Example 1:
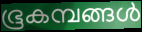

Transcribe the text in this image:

ഭൂകമ്പങ്ങൾ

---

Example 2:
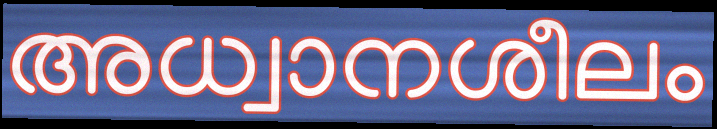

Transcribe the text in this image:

അധ്വാനശീലം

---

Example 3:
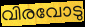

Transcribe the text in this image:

വിരവോടു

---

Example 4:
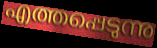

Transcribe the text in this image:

എത്തപ്പെടുന്നു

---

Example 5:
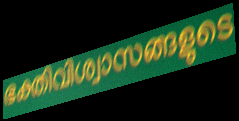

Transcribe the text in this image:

ഭക്തിവിശ്വാസങ്ങളുടെ